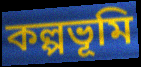
কল্পভূমি